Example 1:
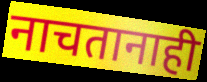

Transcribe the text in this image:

नाचतानाही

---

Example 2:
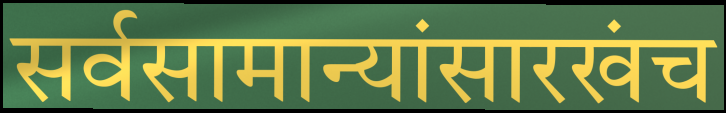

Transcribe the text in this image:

सर्वसामान्यांसारखंच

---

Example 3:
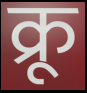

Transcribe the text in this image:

क्रू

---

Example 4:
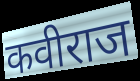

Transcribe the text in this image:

कवीराज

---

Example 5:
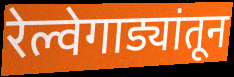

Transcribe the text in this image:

रेल्वेगाड्यांतून